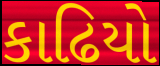
કાઢિયો